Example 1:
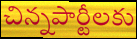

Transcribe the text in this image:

చిన్నపార్టీలకు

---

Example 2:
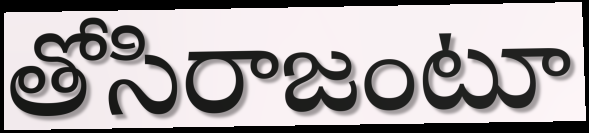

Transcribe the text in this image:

తోసిరాజంటూ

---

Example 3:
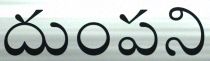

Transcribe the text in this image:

దుంపని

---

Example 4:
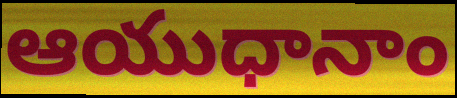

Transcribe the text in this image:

ఆయుధానాం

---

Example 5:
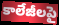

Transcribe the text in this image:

కాలేజీలపై